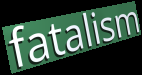
fatalism